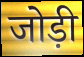
जोड़ी